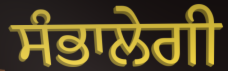
ਸੰਭਾਲੇਗੀ